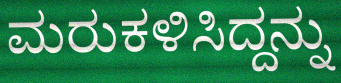
ಮರುಕಳಿಸಿದ್ದನ್ನು